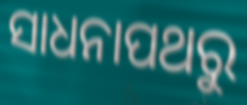
ସାଧନାପଥରୁ